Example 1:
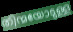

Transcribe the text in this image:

തിന്മയോടുള്ള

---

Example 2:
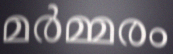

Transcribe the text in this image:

മർമ്മരം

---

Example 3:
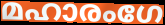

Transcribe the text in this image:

മഹാരംഗേ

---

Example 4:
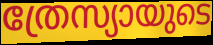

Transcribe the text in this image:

ത്രേസ്യായുടെ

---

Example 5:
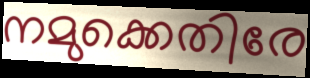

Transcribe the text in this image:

നമുക്കെതിരേ